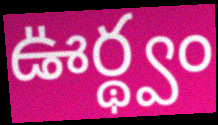
ఊర్థ్వం